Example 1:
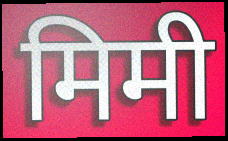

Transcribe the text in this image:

मिमी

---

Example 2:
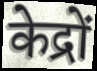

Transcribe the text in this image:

केद्रों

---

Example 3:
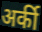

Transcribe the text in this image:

अर्की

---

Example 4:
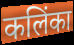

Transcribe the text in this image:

कलिंका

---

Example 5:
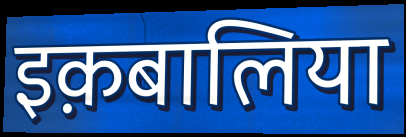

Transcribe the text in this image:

इक़बालिया